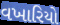
વખારિયો